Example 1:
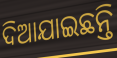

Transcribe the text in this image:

ଦିଆଯାଇଛନ୍ତି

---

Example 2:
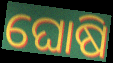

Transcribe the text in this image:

ଘୋଷି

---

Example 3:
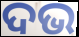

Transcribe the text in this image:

ଦଭ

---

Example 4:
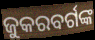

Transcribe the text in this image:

ଜୁକରବର୍ଗଙ୍କ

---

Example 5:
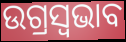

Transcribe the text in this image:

ଉଗ୍ରସ୍ୱଭାବ